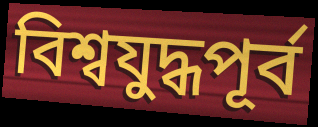
বিশ্বযুদ্ধপূর্ব